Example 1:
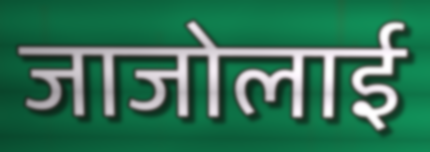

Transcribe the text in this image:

जाजोलाई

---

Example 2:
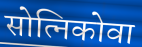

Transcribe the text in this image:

सोत्निकोवा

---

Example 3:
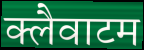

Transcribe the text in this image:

क्लैवाटम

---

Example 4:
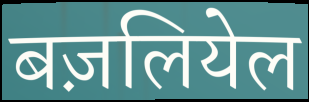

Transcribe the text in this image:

बज़लियेल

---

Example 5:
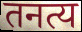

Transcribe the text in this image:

तनत्य